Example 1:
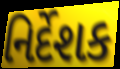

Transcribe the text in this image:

નિર્દેશક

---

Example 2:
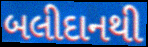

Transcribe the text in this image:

બલીદાનથી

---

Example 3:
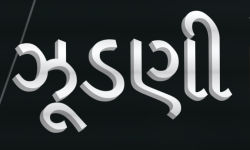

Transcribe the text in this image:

ઝૂડણી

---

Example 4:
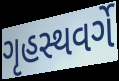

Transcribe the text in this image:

ગૃહસ્થવર્ગે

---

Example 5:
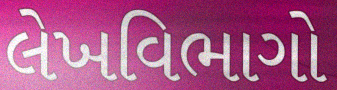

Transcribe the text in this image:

લેખવિભાગો